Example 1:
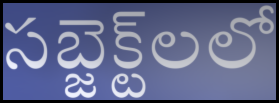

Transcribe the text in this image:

సబ్జెక్ట్‌లలో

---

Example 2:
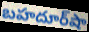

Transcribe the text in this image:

బహదూర్‌షా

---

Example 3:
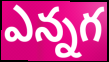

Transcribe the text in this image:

ఎన్నగ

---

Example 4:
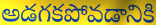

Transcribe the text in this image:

అడగకపోవడానికి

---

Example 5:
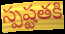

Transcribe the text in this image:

స్పష్టతకి